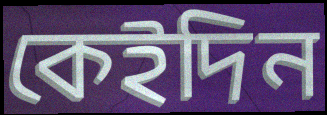
কেইদিন